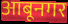
आबूनगर